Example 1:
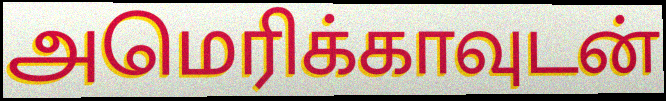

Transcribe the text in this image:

அமெரிக்காவுடன்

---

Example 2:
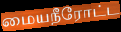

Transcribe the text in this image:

மையநீரோட்ட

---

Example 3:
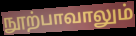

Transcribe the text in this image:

நூற்பாவாலும்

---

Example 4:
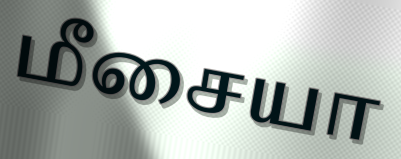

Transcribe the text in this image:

மீசையா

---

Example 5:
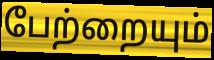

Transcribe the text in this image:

பேற்றையும்